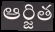
ఆర్జిత